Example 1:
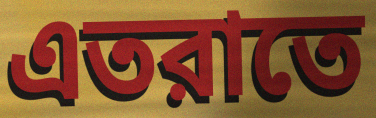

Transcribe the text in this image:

এতরাতে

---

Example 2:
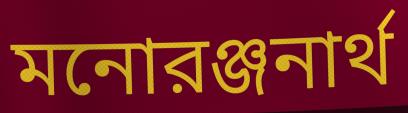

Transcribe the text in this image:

মনোরঞ্জনার্থ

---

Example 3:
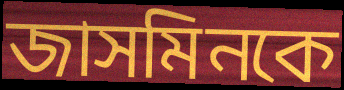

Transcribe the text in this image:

জাসমিনকে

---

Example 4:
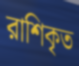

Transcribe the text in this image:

রাশিকৃত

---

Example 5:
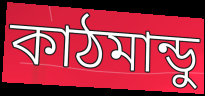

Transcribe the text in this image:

কাঠমান্ডু